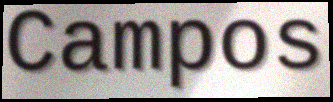
Campos